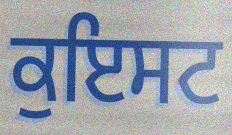
ਕੁਇਸਟ